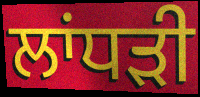
ਲਾਂਧੜੀ